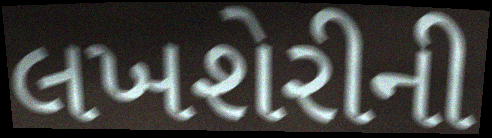
લખશેરીની